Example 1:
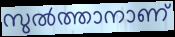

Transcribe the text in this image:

സുൽത്താനാണ്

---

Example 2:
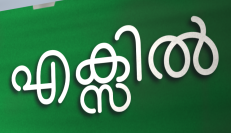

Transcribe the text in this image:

എക്സിൽ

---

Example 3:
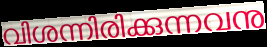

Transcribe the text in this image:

വിശന്നിരിക്കുന്നവനു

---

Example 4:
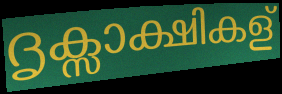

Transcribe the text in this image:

ദൃക്സാക്ഷികള്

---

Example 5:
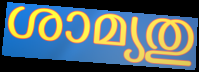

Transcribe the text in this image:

ശാമ്യതു